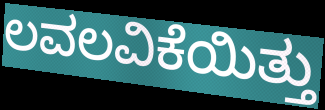
ಲವಲವಿಕೆಯಿತ್ತು